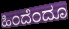
ಹಿಂದೆಂದೂ